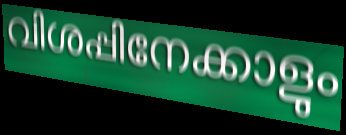
വിശപ്പിനേക്കാളും